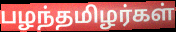
பழந்தமிழர்கள்